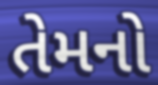
તેમનો